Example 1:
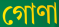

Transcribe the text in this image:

গোণা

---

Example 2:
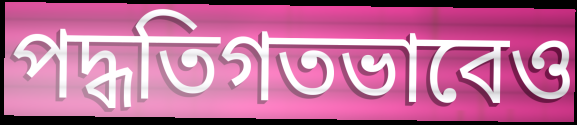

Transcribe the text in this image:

পদ্ধতিগতভাবেও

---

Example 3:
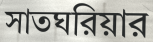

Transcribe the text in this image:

সাতঘরিয়ার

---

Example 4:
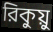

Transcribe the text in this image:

রিকুয়ু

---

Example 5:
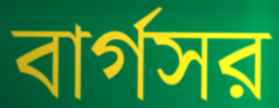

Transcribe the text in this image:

বার্গসর